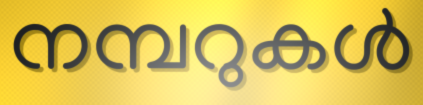
നമ്പറുകൾ